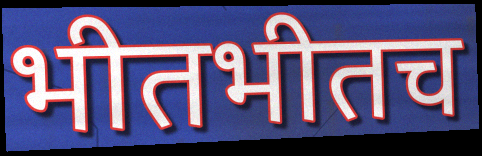
भीतभीतच